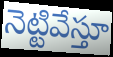
నెట్టివేస్తూ